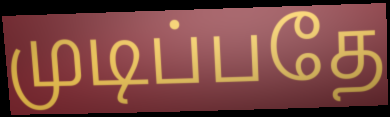
முடிப்பதே